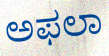
ಅಫಲಾ